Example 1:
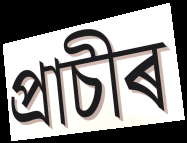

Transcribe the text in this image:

প্ৰাচীৰ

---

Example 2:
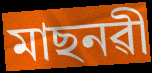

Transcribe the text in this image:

মাছনৱী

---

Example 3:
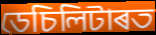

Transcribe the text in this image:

ডেচিলিটাৰত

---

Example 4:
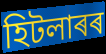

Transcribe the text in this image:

হিটলাৰৰ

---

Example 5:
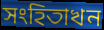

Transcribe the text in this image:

সংহিতাখন